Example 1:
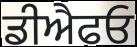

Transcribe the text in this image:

ਡੀਐਫਓ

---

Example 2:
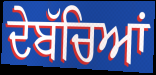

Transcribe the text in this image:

ਦੇਬੱਚਿਆਂ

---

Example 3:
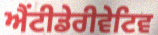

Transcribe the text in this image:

ਐਂਟੀਡੇਰੀਵੇਟਿਵ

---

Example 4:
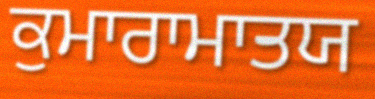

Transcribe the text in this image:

ਕੁਮਾਰਾਮਾਤਯ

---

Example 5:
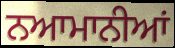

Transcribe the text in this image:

ਨਆਮਾਨੀਆਂ